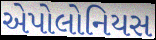
એપોલોનિયસ